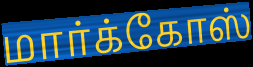
மார்க்கோஸ்